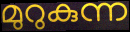
മുറുകുന്ന